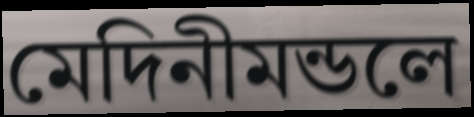
মেদিনীমন্ডলে